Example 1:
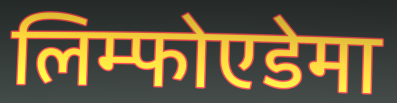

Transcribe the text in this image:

लिम्फोएडेमा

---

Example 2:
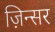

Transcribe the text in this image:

ज़िन्सर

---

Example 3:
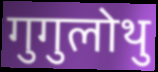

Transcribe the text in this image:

गुगुलोथु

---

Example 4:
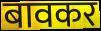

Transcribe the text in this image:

बावकर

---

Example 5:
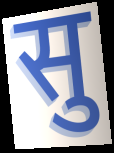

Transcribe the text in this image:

सु